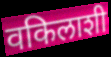
वकिलाशी